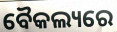
ବୈକଲ୍ୟରେ